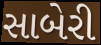
સાબેરી